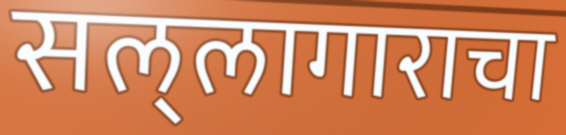
सल्लागाराचा